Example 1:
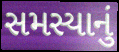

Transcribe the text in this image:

સમસ્યાનું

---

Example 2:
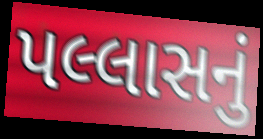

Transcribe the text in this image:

પલ્લાસનું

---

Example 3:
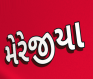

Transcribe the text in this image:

મેરેજીયા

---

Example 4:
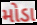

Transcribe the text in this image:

મોડા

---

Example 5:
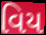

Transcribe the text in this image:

વિય